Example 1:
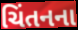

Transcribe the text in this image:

ચિંતનના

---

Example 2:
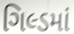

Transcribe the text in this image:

ગિલ્ડમાં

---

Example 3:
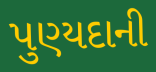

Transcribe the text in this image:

પુણ્યદાની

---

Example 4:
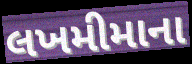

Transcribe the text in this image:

લખમીમાના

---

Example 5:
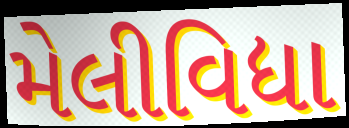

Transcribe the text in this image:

મેલીવિદ્યા